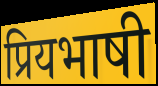
प्रियभाषी